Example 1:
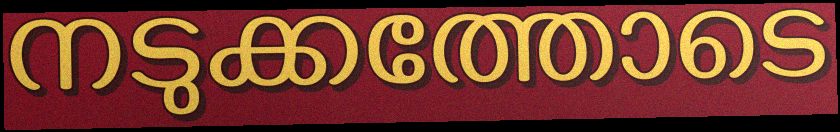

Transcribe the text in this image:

നടുക്കത്തോടെ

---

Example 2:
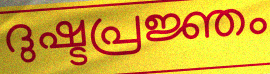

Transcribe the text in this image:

ദുഷ്ടപ്രജ്ഞം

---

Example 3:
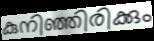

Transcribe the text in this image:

കുനിഞ്ഞിരിക്കും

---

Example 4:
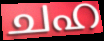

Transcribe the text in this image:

ചഹ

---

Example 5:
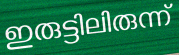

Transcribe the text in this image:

ഇരുട്ടിലിരുന്ന്